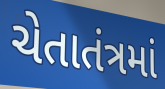
ચેતાતંત્રમાં